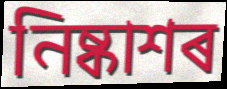
নিষ্কাশৰ